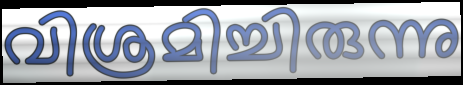
വിശ്രമിച്ചിരുന്നു